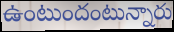
ఉంటుందంటున్నారు